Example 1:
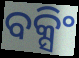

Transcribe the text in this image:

ବକ୍ସିଂ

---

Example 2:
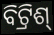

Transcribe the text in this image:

ବିଟ୍ରିଶ୍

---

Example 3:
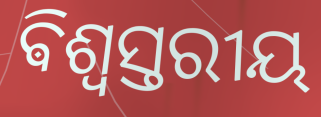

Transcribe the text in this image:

ଵିଶ୍ୱସ୍ତରୀୟ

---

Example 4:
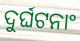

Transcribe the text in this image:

ଦୁର୍ଘଟନାଂ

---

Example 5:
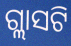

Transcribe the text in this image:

ଗ୍ଲାସଟି